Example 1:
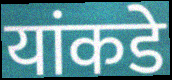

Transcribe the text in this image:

यांकडे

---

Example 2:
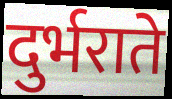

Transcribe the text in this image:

दुर्भराते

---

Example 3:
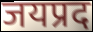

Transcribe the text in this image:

जयप्रद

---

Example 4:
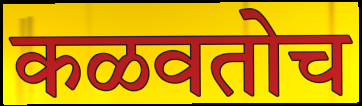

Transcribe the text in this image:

कळवतोच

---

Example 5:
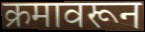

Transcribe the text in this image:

क्रमावरून